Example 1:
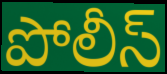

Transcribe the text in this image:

పోలీస్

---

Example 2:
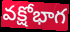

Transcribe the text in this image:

వక్షోభాగ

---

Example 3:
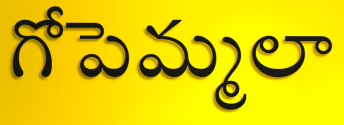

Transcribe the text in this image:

గోపెమ్మలా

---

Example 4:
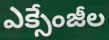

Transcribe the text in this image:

ఎక్సేంజీల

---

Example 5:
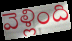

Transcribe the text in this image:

వెళ్లింది